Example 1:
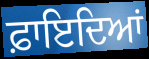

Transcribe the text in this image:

ਫ਼ਾਇਦਿਆਂ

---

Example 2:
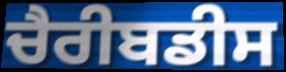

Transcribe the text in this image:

ਚੈਰੀਬਡੀਸ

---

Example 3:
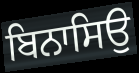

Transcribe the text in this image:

ਬਿਨਾਸਿਉ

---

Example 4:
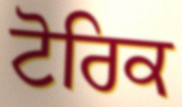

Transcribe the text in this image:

ਟੋਰਿਕ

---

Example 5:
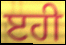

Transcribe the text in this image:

ੲਹੀ